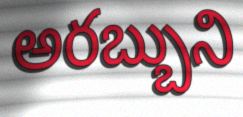
అరబ్బుని